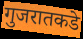
गुजरातकडे